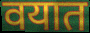
वयात